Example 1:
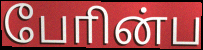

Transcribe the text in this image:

பேரின்ப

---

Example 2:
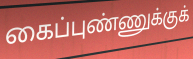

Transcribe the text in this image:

கைப்புண்ணுக்குக்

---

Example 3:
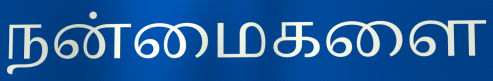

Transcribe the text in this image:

நன்மைகளை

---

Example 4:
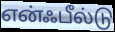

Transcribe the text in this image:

என்ஃபீல்டு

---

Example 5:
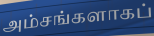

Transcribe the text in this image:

அம்சங்களாகப்